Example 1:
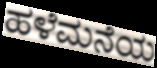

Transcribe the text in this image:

ಹಳೆಮನೆಯ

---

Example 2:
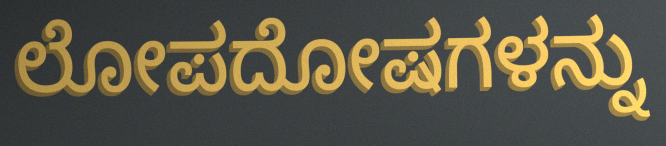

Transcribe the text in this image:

ಲೋಪದೋಷಗಳನ್ನು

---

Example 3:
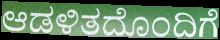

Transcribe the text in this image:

ಆಡಳಿತದೊಂದಿಗೆ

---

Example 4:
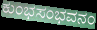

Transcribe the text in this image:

ಕುಂಭಸಂಭವನಂ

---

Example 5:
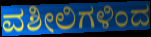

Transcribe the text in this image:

ವಶೀಲಿಗಳಿಂದ